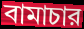
বামাচার